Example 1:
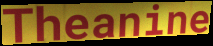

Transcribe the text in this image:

Theanine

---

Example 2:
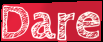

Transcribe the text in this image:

Dare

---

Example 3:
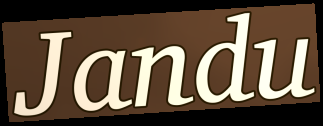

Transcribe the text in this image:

Jandu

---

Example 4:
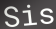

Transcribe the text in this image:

Sis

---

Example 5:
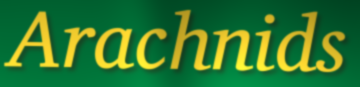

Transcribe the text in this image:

Arachnids